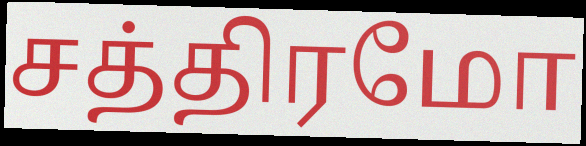
சத்திரமோ